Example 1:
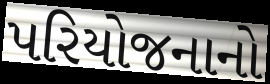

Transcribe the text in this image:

પરિયોજનાનો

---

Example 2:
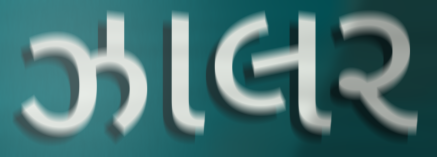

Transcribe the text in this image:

ઝાલર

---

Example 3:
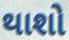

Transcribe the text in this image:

થાશો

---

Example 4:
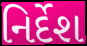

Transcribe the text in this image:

નિર્દેશ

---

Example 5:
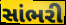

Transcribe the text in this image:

સાંભરી